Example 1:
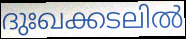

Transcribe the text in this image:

ദുഃഖക്കടലിൽ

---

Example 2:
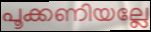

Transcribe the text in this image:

പൂക്കണിയല്ലേ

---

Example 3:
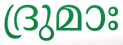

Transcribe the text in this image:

ദ്രുമാഃ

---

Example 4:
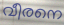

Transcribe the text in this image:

വീരനെ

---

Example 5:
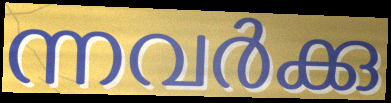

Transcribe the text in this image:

ന്നവർക്കു